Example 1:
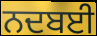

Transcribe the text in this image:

ਨਦਬਈ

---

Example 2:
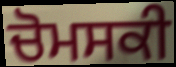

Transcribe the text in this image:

ਚੋਮਸਕੀ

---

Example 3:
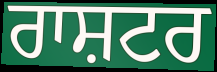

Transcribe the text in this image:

ਰਾਸ਼ਟਰ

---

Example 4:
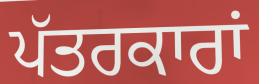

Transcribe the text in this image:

ਪੱਤਰਕਾਰਾਂ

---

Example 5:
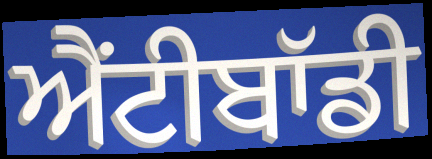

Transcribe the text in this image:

ਐਂਟੀਬਾੱਡੀ